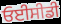
ਓਈਸੀਡੀ